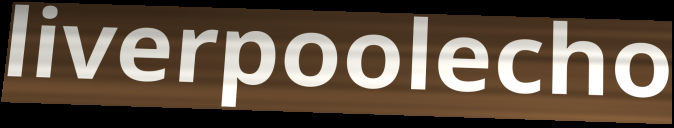
liverpoolecho